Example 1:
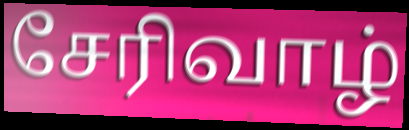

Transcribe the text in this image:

சேரிவாழ்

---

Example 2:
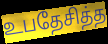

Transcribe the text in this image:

உபதேசித்த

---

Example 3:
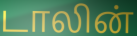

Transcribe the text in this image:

டாலின்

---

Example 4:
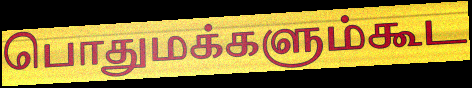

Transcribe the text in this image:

பொதுமக்களும்கூட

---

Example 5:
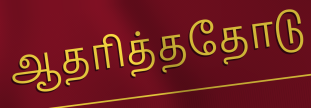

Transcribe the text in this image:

ஆதரித்ததோடு